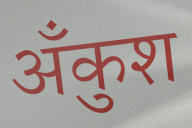
अँकुश